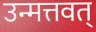
उन्मत्तवत्